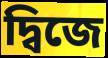
দ্বিজে